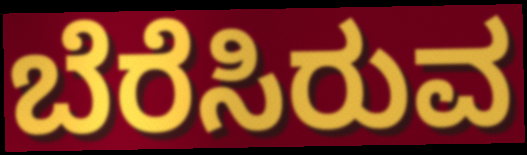
ಬೆರೆಸಿರುವ